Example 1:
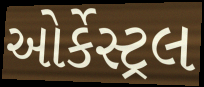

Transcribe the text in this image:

ઓર્કેસ્ટ્રલ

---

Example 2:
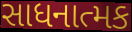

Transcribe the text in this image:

સાધનાત્મક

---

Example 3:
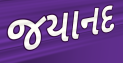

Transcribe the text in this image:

જયાનદ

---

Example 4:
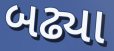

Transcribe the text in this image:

બઢ્યા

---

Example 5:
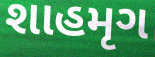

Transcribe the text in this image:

શાહમૃગ